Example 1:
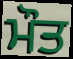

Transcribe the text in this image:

ਮੌਤ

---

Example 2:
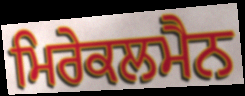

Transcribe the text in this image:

ਮਿਰੇਕਲਮੈਨ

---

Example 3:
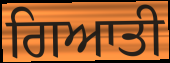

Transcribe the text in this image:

ਗਿਆਤੀ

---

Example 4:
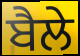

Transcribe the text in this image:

ਬੈਲੇ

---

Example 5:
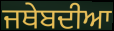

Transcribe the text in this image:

ਜਥੇਬਦੀਆ